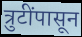
त्रुटींपासून